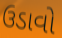
ઉડાવો